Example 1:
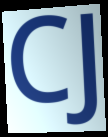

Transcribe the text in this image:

CJ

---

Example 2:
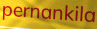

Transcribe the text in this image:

pernankila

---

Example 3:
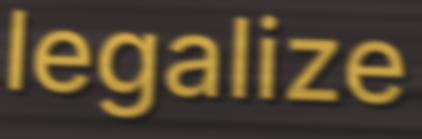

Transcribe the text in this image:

legalize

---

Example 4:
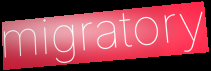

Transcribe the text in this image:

migratory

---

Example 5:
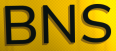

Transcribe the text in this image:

BNS